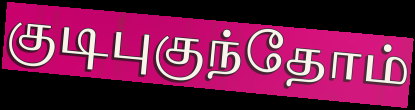
குடிபுகுந்தோம்